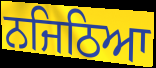
ਨਜਿਠਿਆ